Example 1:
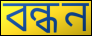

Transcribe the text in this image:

বন্ধন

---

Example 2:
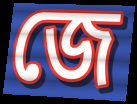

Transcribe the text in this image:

জে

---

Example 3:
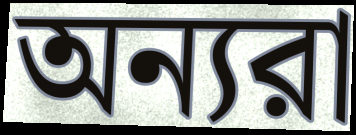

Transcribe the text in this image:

অন্যরা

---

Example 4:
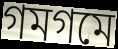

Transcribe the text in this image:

গমগমে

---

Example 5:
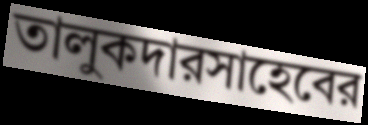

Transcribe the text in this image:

তালুকদারসাহেবের